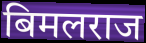
बिमलराज